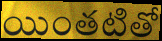
యింతటితో